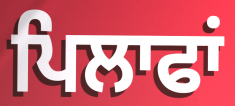
ਪਿਲਾਫਾਂ